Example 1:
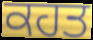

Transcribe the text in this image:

ਕਹਤ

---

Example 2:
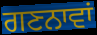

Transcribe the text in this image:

ਗਣਨਾਵਾਂ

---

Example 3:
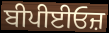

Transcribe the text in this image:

ਬੀਪੀਈਓਜ਼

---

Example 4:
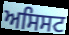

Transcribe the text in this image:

ਅਸਿਸਟ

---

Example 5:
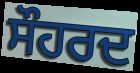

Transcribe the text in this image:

ਸੌਹਰਦ